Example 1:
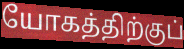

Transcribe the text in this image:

யோகத்திற்குப்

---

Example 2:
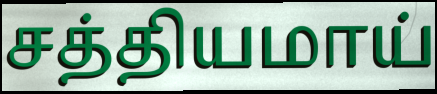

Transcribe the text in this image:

சத்தியமாய்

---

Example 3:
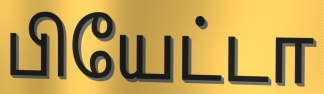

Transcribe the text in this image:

பியேட்டா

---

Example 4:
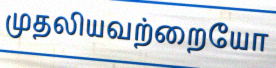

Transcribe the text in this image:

முதலியவற்றையோ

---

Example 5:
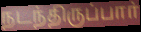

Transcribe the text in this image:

நடந்திருப்பார்